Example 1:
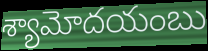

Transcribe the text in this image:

శ్యామోదయంబు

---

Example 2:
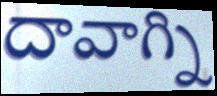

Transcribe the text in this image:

దావాగ్ని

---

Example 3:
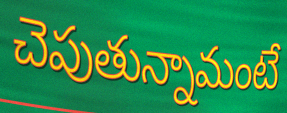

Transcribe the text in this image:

చెపుతున్నామంటే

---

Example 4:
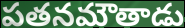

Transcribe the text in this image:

పతనమౌతాడు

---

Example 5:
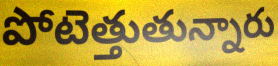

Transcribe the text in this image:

పోటెత్తుతున్నారు